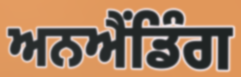
ਅਨਐਂਡਿੰਗ